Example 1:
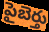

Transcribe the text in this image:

పైబెర్తు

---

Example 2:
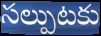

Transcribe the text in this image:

సల్పుటకు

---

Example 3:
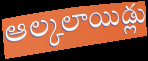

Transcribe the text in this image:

ఆల్కలాయిడ్లు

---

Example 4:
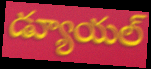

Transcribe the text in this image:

డ్యూయల్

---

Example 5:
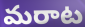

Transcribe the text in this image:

మరాట